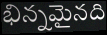
భిన్నమైనది